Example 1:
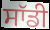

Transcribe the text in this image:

ਸਾੱਡੀ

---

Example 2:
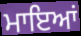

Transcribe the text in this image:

ਮਾਇਆਂ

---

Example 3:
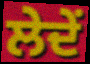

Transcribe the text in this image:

ਲੇਦੇਂ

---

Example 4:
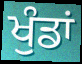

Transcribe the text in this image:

ਖੁੰਡਾਂ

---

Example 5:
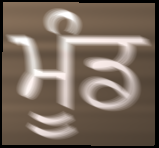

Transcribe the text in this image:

ਮੂੰਡ